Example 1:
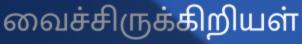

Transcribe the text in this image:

வைச்சிருக்கிறியள்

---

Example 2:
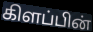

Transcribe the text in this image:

கிளப்பின்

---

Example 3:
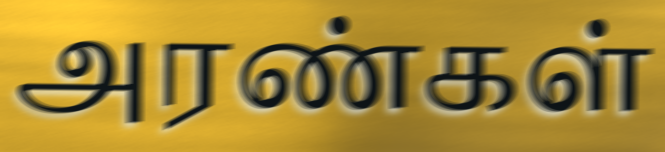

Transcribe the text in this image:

அரண்கள்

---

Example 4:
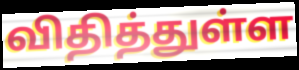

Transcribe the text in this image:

விதித்துள்ள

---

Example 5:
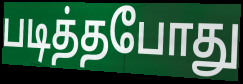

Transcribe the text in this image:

படித்தபோது